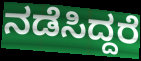
ನಡೆಸಿದ್ದರೆ